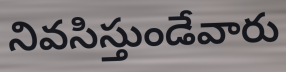
నివసిస్తుండేవారు